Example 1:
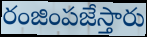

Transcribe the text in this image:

రంజింపజేస్తారు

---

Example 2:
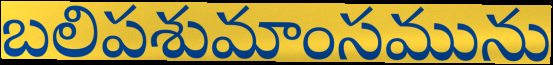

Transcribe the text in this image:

బలిపశుమాంసమును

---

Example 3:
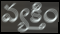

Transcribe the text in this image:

వ్యక్తిం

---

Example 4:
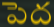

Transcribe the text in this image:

పెద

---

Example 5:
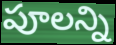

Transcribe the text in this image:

పూలన్ని